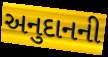
અનુદાનની